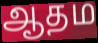
ஆதம